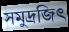
সমুদ্রজিৎ